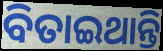
ବିତାଇଥାନ୍ତି